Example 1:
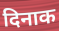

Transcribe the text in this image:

दिनाक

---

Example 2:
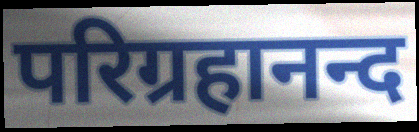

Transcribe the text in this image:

परिग्रहानन्द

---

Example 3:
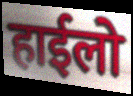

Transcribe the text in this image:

हाईलो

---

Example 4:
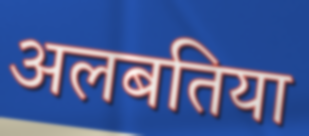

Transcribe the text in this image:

अलबतिया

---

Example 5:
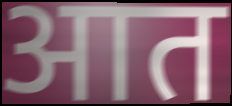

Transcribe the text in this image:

आत